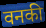
वनकी